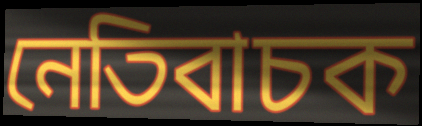
নেতিবাচক